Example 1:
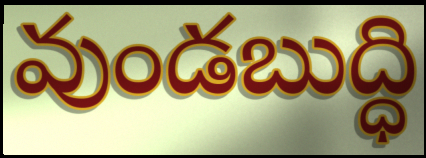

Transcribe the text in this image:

వుండబుద్ధి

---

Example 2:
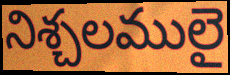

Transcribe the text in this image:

నిశ్చలములై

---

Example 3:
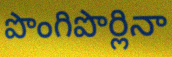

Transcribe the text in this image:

పొంగిపొర్లినా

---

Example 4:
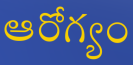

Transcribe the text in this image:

ఆరోగ్యం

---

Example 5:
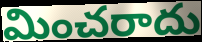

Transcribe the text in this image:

మించరాదు